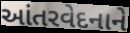
આંતરવેદનાને